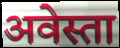
अवेस्ता